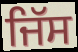
ਜਿੱਸ